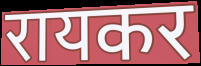
रायकर